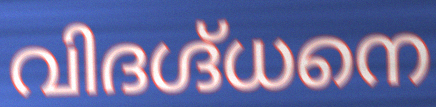
വിദഗ്ദ്ധനെ